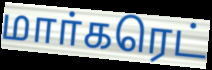
மார்கரெட்